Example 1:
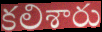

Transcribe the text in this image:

కలిశారు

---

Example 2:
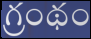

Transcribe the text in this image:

గ్రంథం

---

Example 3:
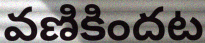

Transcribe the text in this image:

వణికిందట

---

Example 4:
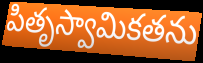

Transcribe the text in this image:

పితృస్వామికతను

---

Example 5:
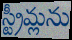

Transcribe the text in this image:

స్ట్రీమ్లను